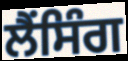
ਲੈਂਸਿੰਗ